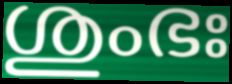
ശുംഭഃ